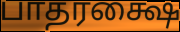
பாதரக்ஷை